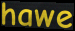
hawe